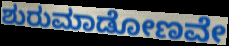
ಶುರುಮಾಡೋಣವೇ